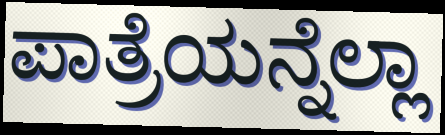
ಪಾತ್ರೆಯನ್ನೆಲ್ಲಾ